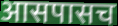
आसपासच